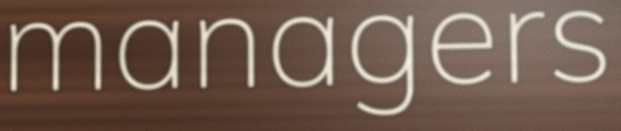
managers